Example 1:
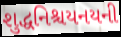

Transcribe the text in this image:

શુદ્ધનિશ્ચયનયની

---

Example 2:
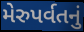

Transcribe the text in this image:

મેરુપર્વતનું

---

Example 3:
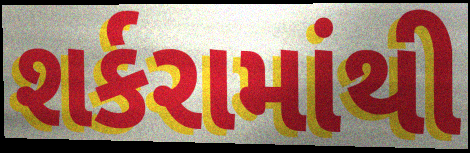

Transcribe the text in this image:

શર્કરામાંથી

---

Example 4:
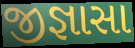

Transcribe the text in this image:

જીજ્ઞાસા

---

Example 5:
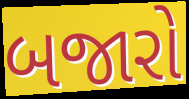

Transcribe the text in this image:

બજારો